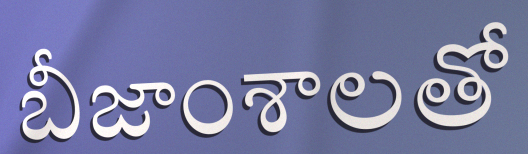
బీజాంశాలతో